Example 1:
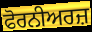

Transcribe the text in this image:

ਫੋਰਨੀਅਰਜ਼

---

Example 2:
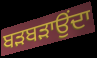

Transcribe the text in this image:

ਬੜਬੜਾਉਂਦਾ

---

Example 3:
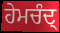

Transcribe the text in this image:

ਹੇਮਚੰਦ੍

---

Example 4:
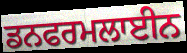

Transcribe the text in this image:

ਡਨਫਰਮਲਾਈਨ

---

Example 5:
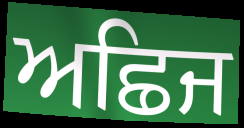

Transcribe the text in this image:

ਅਛਿਜ